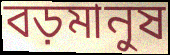
বড়মানুষ